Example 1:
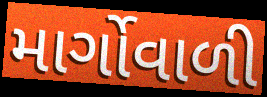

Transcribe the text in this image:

માર્ગોવાળી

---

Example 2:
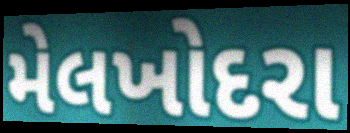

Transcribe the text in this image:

મેલખોદરા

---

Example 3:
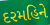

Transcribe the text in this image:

દરમહિને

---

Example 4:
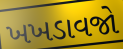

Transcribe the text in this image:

ખખડાવજો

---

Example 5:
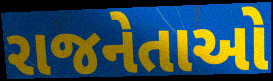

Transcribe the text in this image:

રાજનેતાઓ